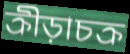
ক্রীড়াচক্র